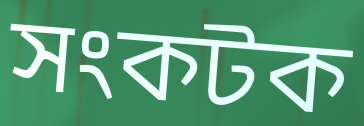
সংকটক